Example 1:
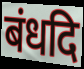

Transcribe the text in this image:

बंधदि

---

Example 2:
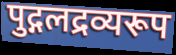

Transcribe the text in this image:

पुद्गलद्रव्यरूप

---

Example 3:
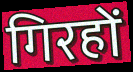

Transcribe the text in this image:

गिरहों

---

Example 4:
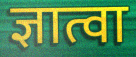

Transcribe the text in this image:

ज्ञात्वा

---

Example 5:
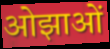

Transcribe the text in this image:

ओझाओं